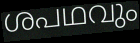
ശപഥവും